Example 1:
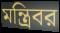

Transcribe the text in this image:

মন্ত্রিবর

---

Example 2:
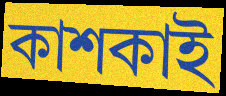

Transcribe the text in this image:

কাশকাই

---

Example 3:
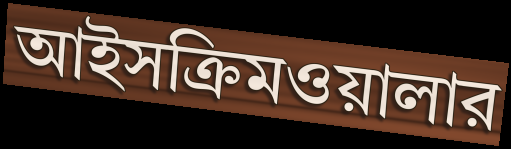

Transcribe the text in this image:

আইসক্রিমওয়ালার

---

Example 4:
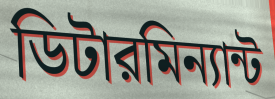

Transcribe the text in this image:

ডিটারমিন্যান্ট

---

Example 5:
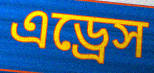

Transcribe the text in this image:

এড্রেস